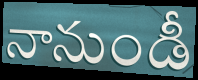
నానుండీ